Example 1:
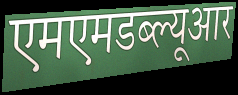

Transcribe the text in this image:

एमएमडब्ल्यूआर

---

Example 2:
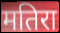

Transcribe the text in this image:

मतिरा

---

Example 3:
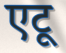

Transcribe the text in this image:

एटू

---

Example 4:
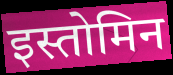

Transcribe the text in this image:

इस्तोमिन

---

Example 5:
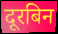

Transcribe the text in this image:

दूरबिन